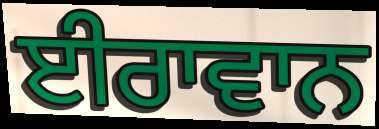
ਈਰਾਵਾਨ